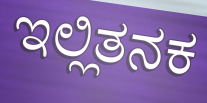
ಇಲ್ಲಿತನಕ